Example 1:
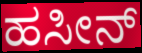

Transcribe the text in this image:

ಹಸೀನ್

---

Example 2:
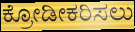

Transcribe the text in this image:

ಕ್ರೋಡೀಕರಿಸಲು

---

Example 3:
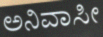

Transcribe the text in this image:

ಅನಿವಾಸೀ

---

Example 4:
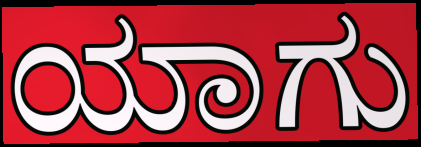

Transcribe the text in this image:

ಯಾಗು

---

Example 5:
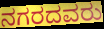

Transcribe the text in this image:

ನಗರದವರು